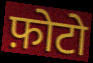
फ़ोटो